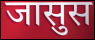
जासुस